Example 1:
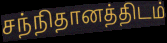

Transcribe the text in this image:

சந்நிதானத்திடம்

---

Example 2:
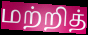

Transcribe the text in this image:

மற்றித்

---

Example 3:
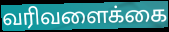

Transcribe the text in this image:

வரிவளைக்கை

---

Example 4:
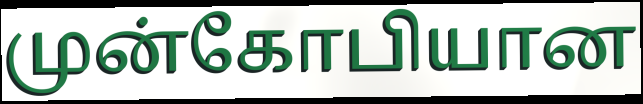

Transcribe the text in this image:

முன்கோபியான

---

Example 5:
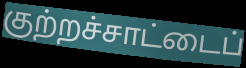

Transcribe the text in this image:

குற்றச்சாட்டைப்